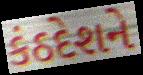
કંઠદેશને